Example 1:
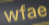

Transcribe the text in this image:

wfae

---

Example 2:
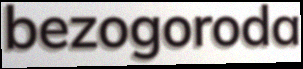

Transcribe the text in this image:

bezogoroda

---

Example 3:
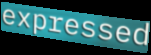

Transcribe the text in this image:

expressed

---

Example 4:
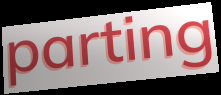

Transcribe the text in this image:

parting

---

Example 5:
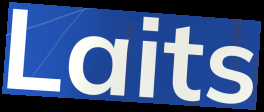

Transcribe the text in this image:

Laits